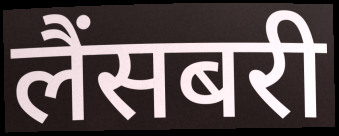
लैंसबरी